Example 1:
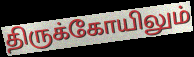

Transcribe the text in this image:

திருக்கோயிலும்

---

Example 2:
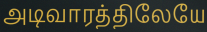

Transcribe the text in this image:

அடிவாரத்திலேயே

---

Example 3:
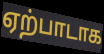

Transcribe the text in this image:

ஏற்பாடாக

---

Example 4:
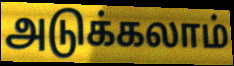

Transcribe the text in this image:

அடுக்கலாம்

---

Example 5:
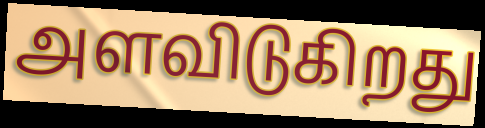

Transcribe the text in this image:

அளவிடுகிறது